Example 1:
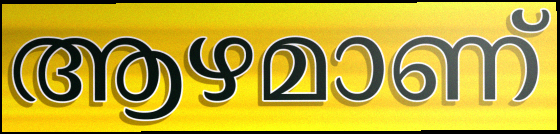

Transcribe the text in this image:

ആഴമാണ്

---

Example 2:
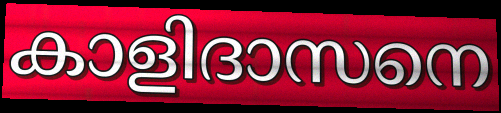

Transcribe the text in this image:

കാളിദാസനെ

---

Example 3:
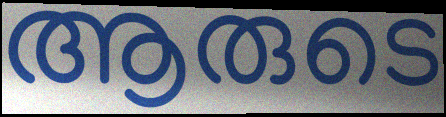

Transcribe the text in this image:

ആരുടെ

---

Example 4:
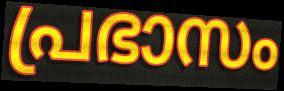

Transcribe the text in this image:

പ്രഭാസം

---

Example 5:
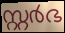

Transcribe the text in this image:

സ്റ്റർഭ